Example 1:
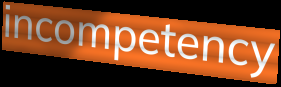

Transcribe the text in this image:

incompetency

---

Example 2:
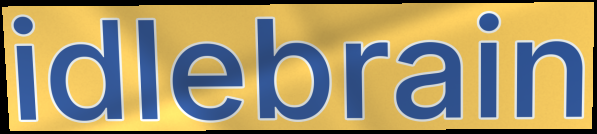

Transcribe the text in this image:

idlebrain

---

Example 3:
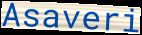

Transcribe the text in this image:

Asaveri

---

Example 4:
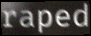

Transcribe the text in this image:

raped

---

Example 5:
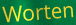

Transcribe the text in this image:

Worten